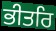
ਭੀਤਰਿ